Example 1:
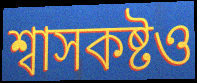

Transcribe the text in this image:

শ্বাসকষ্টও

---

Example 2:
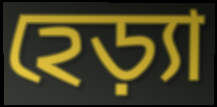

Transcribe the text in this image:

হেড়্যা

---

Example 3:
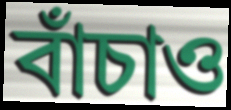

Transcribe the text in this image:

বাঁচাও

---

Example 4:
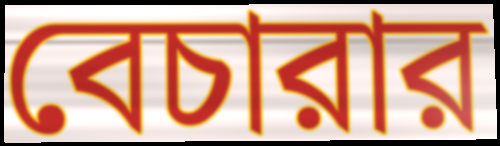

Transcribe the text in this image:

বেচারার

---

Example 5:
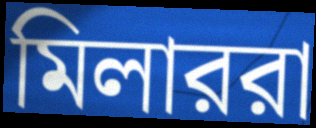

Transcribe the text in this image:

মিলাররা